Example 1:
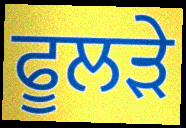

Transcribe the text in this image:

ਫੂਲੜੇ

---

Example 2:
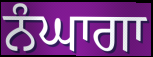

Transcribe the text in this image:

ਨੰਘਾਗਾ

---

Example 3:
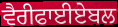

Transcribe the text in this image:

ਵੈਰੀਫਾਈਏਬਲ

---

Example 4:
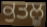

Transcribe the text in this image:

ਕੁਤਲੂ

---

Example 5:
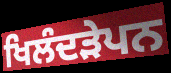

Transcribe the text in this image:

ਖਿਲੰਦੜੇਪਨ